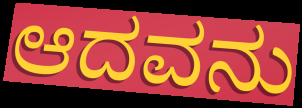
ಆದವನು